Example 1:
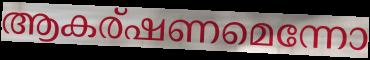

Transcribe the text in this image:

ആകര്ഷണമെന്നോ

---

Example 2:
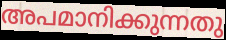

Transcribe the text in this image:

അപമാനിക്കുന്നതു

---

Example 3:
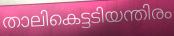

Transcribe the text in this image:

താലികെട്ടടിയന്തിരം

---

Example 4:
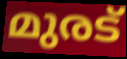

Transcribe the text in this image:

മുരട്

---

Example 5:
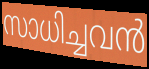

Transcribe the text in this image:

സാധിച്ചവൻ